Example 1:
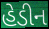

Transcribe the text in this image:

હેડીન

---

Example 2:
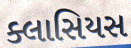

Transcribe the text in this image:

ક્લાસિયસ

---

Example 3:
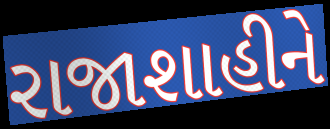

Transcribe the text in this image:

રાજાશાહીને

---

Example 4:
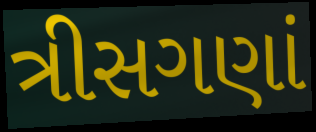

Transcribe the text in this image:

ત્રીસગણાં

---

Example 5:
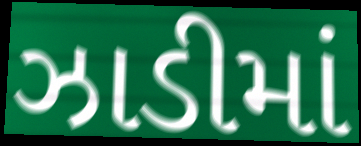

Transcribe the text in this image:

ઝાડીમાં